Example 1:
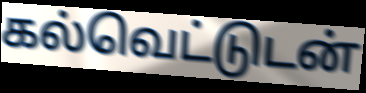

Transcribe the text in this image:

கல்வெட்டுடன்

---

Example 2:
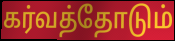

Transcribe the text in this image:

கர்வத்தோடும்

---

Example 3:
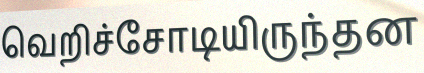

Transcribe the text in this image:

வெறிச்சோடியிருந்தன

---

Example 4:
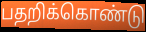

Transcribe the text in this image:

பதறிக்கொண்டு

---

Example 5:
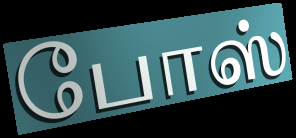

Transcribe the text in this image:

போஸ்